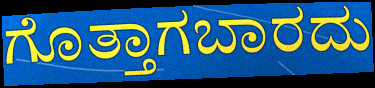
ಗೊತ್ತಾಗಬಾರದು